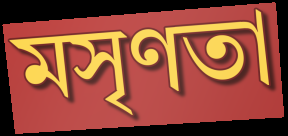
মসৃণতা